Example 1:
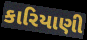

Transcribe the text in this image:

કારિયાણી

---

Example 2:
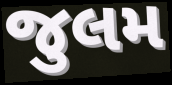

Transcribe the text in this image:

જુલમ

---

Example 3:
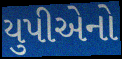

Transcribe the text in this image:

યુપીએનો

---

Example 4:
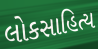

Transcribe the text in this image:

લોકસાહિત્ય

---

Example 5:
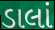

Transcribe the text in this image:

ડાલાં